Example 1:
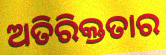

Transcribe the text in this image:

ଅତିରିକ୍ତତାର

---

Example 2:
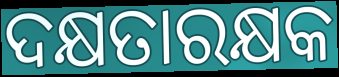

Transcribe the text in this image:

ଦକ୍ଷତାରକ୍ଷକ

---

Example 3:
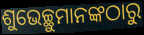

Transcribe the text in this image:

ଶୁଭେଚ୍ଛୁମାନଙ୍କଠାରୁ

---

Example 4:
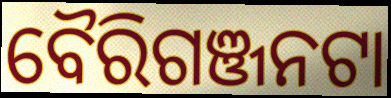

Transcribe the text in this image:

ବୈରିଗଞ୍ଜନଟା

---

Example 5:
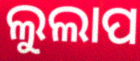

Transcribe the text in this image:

ଲୁଲାପ